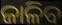
ଜାଳିବ